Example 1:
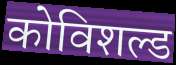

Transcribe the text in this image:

कोविशल्ड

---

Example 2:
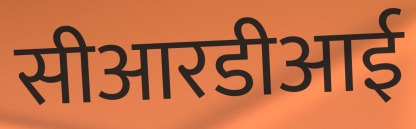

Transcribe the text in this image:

सीआरडीआई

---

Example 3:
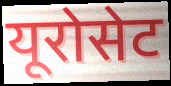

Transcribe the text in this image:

यूरोसेट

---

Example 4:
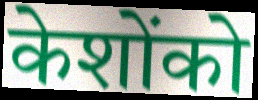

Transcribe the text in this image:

केशोंको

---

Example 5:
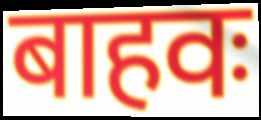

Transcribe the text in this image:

बाहवः